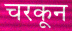
चरकून